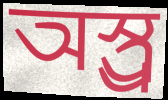
অস্ত্র্র